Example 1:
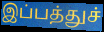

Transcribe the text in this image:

இப்பத்துச்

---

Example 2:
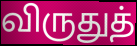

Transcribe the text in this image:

விருதுத்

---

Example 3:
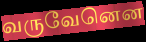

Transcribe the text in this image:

வருவேனென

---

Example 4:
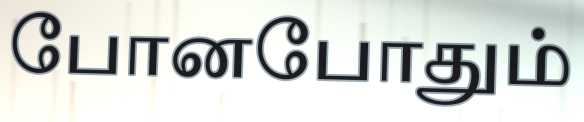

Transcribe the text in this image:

போனபோதும்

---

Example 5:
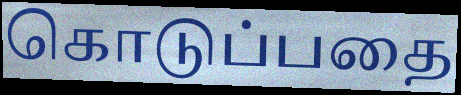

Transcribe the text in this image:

கொடுப்பதை